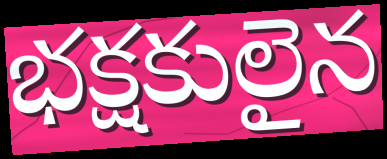
భక్షకులైన